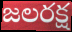
జలరక్ష